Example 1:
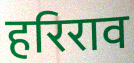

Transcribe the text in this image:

हरिराव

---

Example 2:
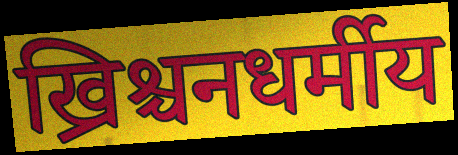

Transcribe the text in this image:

ख्रिश्चनधर्मीय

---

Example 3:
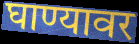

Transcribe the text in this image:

घाण्यावर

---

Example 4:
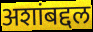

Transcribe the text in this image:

अशांबद्दल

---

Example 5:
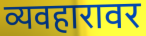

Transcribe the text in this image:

व्यवहारावर